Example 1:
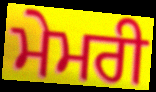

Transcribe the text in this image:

ਮੇਮਰੀ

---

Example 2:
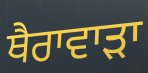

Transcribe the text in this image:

ਥੈਰਾਵਾੜਾ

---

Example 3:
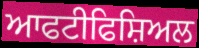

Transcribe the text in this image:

ਆਫਟੀਫਿਸ਼ਿਅਲ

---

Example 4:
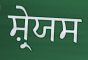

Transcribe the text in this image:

ਸ਼੍ਰੇਯਸ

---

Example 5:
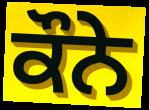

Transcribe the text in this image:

ਕੌਨੇ